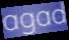
agad